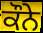
ਕੌਨੇ